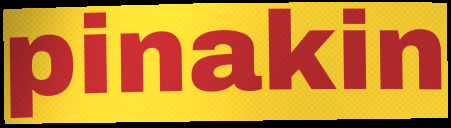
pinakin